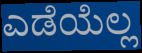
ಎಡೆಯೆಲ್ಲ